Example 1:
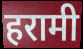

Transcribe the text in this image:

हरामी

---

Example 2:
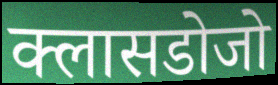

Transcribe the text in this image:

क्लासडोजो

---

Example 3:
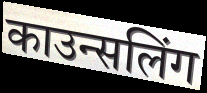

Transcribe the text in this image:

काउन्सलिंग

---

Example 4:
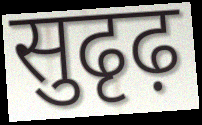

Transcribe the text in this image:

सुढृढ़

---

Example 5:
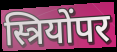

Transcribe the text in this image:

स्त्रियोंपर